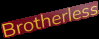
Brotherless